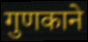
गुणकाने